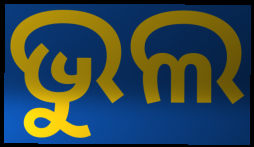
ଭୁଲ